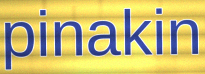
pinakin